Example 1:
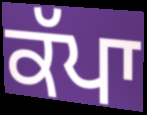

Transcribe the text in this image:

ਕੱਪਾ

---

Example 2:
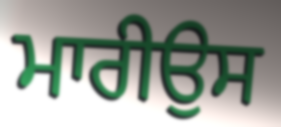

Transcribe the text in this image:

ਮਾਰੀਉਸ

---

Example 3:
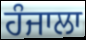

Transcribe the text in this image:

ਹੰਜਾਲਾ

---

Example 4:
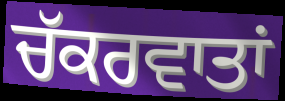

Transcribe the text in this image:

ਚੱਕਰਵਾਤਾਂ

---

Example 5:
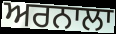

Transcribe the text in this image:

ਅਰਨਾਲਾ